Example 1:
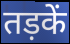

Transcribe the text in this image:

तड़कें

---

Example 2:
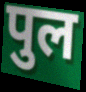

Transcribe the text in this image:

पुल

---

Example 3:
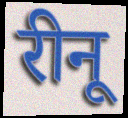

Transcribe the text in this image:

रीनू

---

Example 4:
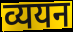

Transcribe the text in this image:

व्ययन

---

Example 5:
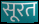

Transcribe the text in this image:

सूरत